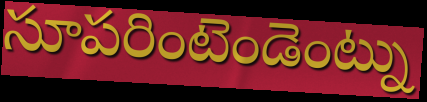
సూపరింటెండెంట్ను